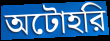
অটোহরি